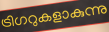
ട്രിഗറുകളാകുന്നു